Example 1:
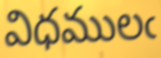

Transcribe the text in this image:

విధములఁ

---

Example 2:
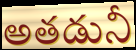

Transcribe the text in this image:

అతడునీ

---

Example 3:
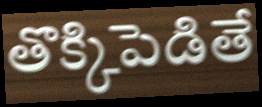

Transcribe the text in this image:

తొక్కిపెడితే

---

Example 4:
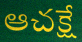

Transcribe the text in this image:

ఆచక్షే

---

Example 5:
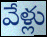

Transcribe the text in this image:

వేళ్లు